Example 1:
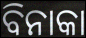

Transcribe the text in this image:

ବିନାକା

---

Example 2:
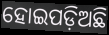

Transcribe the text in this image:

ହୋଇପଡ଼ିଅଛି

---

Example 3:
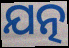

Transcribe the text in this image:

ଯତ୍ନ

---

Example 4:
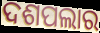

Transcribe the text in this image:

ଦଶପଲାର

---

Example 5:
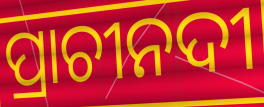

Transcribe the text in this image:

ପ୍ରାଚୀନଦୀ